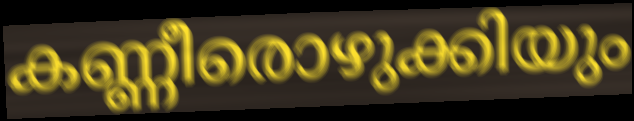
കണ്ണീരൊഴുക്കിയും